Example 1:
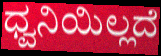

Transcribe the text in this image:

ಧ್ವನಿಯಿಲ್ಲದೆ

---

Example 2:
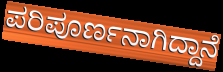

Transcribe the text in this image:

ಪರಿಪೂರ್ಣನಾಗಿದ್ದಾನೆ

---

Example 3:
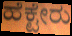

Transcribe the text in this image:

ಹೆಕ್ಟೇರು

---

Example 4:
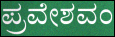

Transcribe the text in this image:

ಪ್ರವೇಶವಂ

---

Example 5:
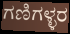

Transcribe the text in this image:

ಗಣಿಗಳ್ಳರ